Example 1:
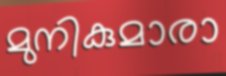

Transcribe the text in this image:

മുനികുമാരാ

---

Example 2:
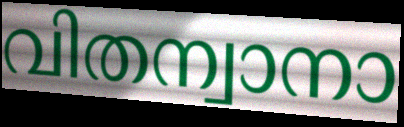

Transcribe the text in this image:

വിതന്വാനാ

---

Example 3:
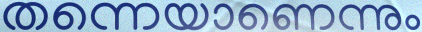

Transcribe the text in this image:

തന്നെയാണെന്നും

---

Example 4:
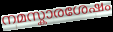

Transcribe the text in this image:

നമസ്കാരശേഷം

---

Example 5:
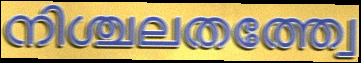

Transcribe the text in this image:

നിശ്ചലതത്ത്വേ